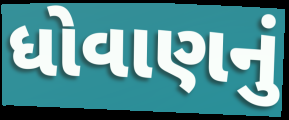
ધોવાણનું